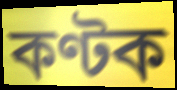
কণ্টক